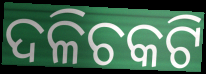
ଦଳିଚକଟି